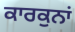
ਕਾਰਕੁਨਾਂ